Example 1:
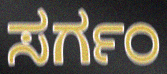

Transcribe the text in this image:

ಸರ್ಗಂ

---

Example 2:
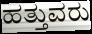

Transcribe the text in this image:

ಹತ್ತುವರು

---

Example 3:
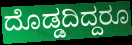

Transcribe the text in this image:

ದೊಡ್ಡದಿದ್ದರೂ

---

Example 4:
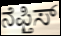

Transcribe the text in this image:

ನೆಫ್ತಿಸ್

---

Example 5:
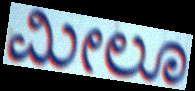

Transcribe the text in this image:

ಮೀಲೂ